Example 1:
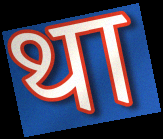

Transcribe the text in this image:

था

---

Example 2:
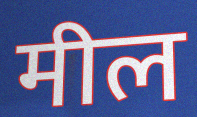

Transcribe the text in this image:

मील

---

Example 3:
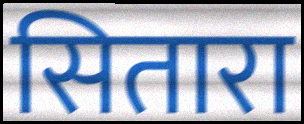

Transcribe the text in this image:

सितारा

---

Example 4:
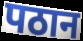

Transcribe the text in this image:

पठान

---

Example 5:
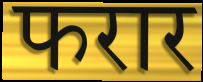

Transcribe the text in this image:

फरार